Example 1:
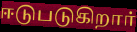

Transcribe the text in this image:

ஈடுபடுகிறார்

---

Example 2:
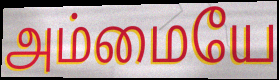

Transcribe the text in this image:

அம்மையே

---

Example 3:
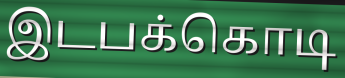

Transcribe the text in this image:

இடபக்கொடி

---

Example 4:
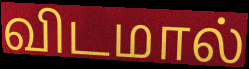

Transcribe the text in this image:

விடமால்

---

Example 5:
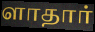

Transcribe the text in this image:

ளாதார்